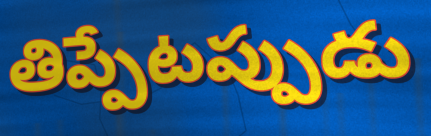
తిప్పేటప్పుడు